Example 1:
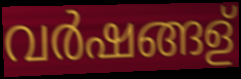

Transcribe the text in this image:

വർഷങ്ങള്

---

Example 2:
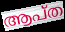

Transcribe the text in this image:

ആപ്ത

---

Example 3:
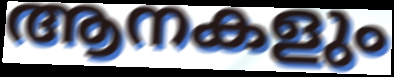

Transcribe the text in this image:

ആനകളും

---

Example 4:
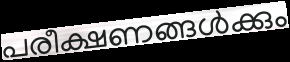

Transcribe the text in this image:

പരീക്ഷണങ്ങൾക്കും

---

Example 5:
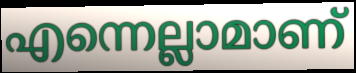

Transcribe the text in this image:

എന്നെല്ലാമാണ്